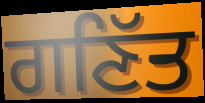
ਗਣਿੱਤ